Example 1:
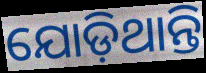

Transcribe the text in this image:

ଯୋଡ଼ିଥାନ୍ତି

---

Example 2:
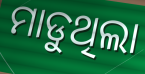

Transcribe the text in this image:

ମାଡୁଥିଲା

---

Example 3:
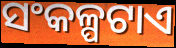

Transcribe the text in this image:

ସଂକଳ୍ପଟାଏ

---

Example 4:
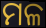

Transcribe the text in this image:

ମଳ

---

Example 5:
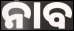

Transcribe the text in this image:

ନାବ